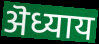
ऄध्याय